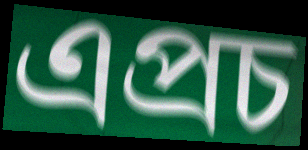
এপ্রচ